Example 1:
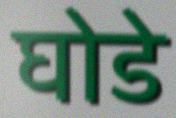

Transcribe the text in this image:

घोडे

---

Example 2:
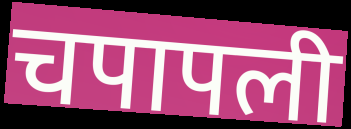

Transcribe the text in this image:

चपापली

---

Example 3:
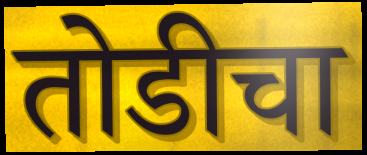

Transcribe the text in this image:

तोडीचा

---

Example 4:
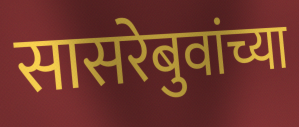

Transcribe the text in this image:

सासरेबुवांच्या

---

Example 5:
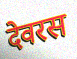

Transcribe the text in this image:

देवरस